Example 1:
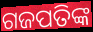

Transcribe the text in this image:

ଗଜପତିଙ୍କ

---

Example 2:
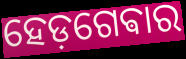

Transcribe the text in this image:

ହେଡ଼ଗେଵାର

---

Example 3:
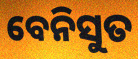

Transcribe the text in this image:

ବେନିସୁତ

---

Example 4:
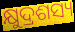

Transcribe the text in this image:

କ୍ଷୁଦ୍ରଶସ୍ୟ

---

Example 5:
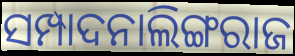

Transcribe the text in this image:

ସମ୍ପାଦନାଲିଙ୍ଗରାଜ